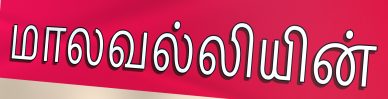
மாலவல்லியின்